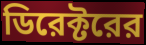
ডিরেক্টরের